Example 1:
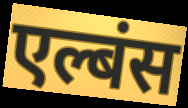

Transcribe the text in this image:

एल्बंस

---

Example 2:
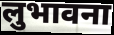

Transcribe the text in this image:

लुभावना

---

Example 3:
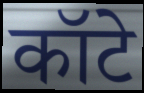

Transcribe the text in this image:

कॉटे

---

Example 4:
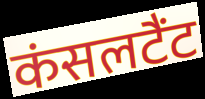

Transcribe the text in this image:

कंसलटैंट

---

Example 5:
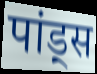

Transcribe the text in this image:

पांड्स